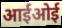
आईओई